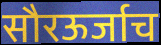
सौरऊर्जाच